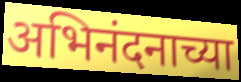
अभिनंदनाच्या